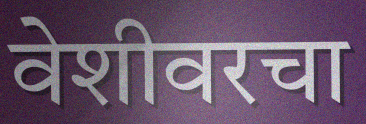
वेशीवरचा